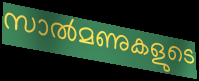
സാൽമണുകളുടെ